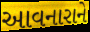
આવનારાને